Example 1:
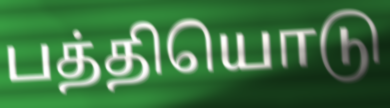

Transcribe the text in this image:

பத்தியொடு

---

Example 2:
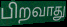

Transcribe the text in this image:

பிறவாது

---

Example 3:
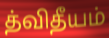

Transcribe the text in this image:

த்விதீயம்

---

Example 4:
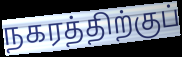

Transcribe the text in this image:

நகரத்திற்குப்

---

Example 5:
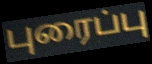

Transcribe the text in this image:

புரைப்பு